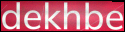
dekhbe